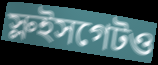
স্লুইসগেটও